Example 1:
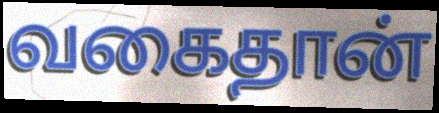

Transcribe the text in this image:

வகைதான்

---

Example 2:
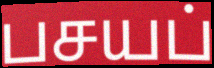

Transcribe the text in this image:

பசயப்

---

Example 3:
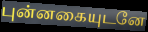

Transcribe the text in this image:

புன்னகையுடனே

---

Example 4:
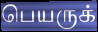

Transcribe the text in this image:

பெயருக்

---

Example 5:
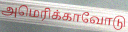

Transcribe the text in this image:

அமெரிக்காவோடு